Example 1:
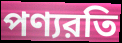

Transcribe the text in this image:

পণ্যরতি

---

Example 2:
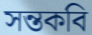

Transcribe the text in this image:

সন্তকবি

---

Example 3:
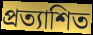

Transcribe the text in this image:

প্রত্যাশিত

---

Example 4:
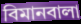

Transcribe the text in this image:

বিমানবালা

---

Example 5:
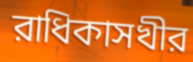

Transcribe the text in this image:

রাধিকাসখীর